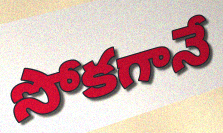
సోకగానే